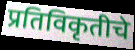
प्रतिविकृतीचे